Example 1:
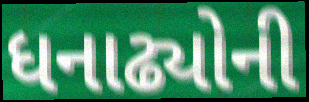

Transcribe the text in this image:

ધનાઢ્યોની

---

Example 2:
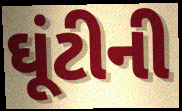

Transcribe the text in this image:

ઘૂંટીની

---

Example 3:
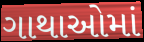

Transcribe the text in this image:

ગાથાઓમાં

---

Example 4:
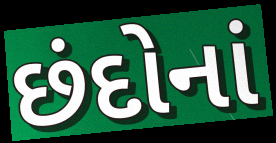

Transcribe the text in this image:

છંદોનાં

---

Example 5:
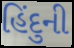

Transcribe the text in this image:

હિંદુની